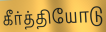
கீர்த்தியோடு